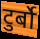
टुर्बो